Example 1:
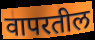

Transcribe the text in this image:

वापरतील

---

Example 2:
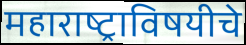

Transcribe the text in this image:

महाराष्ट्राविषयीचे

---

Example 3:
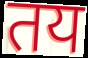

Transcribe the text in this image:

तय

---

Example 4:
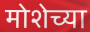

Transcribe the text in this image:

मोशेच्या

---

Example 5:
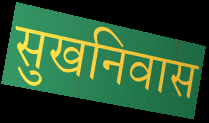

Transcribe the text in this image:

सुखनिवास